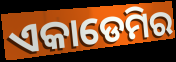
ଏକାଡେମିର